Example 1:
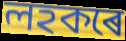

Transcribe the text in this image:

লহকৰে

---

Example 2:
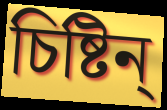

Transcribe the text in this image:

চিষ্টিন্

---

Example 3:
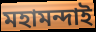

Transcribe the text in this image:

মহামন্দাই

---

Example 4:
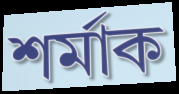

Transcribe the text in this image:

শৰ্মাক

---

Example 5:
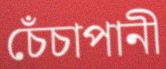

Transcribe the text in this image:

চেঁচাপানী